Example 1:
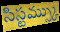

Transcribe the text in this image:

సిస్టమ్స్కు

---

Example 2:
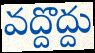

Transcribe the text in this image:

వద్దొద్దు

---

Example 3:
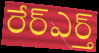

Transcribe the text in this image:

రేర్ఎర్త్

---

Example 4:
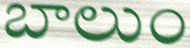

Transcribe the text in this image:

బాలుం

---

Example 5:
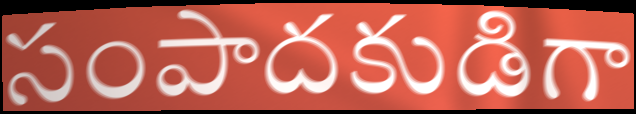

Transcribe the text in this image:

సంపాదకుడిగా